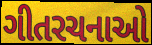
ગીતરચનાઓ